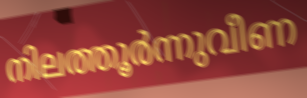
നിലത്തൂർന്നുവീണ